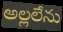
అల్లలేను